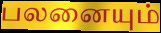
பலனையும்